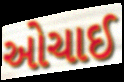
ઓચાઈ